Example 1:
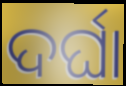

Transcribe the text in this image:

ଦର୍ଘା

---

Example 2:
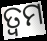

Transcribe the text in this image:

ତ୍ୱମ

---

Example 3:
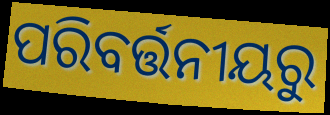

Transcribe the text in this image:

ପରିବର୍ତ୍ତନୀୟରୁ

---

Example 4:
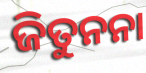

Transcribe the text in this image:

ଜିତୁନନା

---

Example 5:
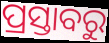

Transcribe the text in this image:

ପ୍ରସ୍ତାବରୁ